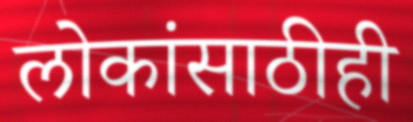
लोकांसाठीही